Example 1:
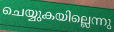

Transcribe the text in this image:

ചെയ്യുകയില്ലെന്നു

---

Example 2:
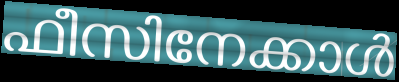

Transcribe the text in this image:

ഫീസിനേക്കാൾ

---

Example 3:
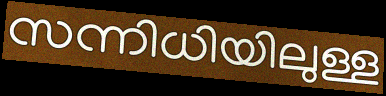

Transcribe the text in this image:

സന്നിധിയിലുള്ള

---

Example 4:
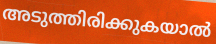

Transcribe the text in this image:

അടുത്തിരിക്കുകയാൽ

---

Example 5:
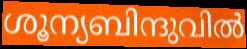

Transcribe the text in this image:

ശൂന്യബിന്ദുവിൽ